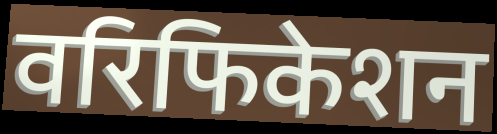
वरिफिकेशन